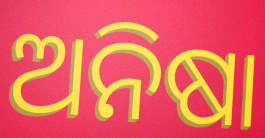
ଅନିଷା